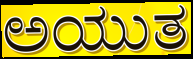
ಅಯುತ